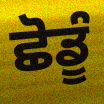
ਛੋਡੂੰ